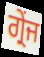
ਗ੍ਰੇਂਜ